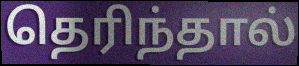
தெரிந்தால்